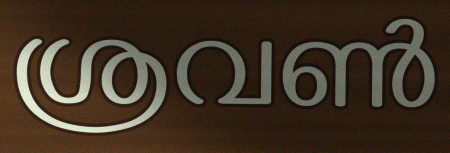
ശ്രവൺ